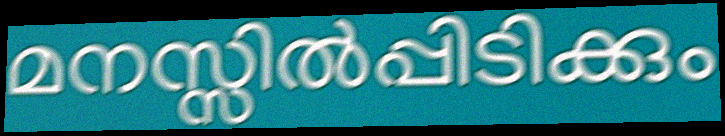
മനസ്സിൽപ്പിടിക്കും